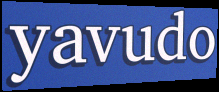
yavudo